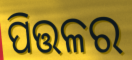
ପିତ୍ତଳର